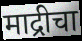
माद्रीचा